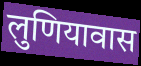
लुणियावास